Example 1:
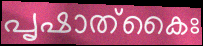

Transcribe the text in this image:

പൃഷാത്കൈഃ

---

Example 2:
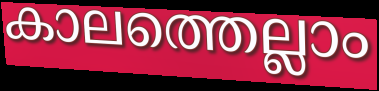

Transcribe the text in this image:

കാലത്തെല്ലാം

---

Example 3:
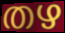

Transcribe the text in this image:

തഴ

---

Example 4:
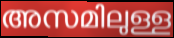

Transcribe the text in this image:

അസമിലുള്ള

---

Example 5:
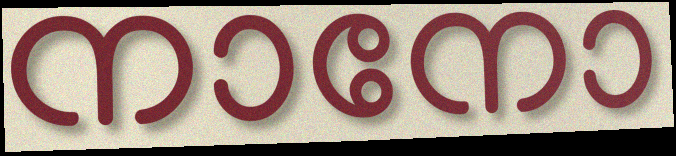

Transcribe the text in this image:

നാനോ